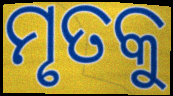
ମୃତକୁ